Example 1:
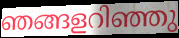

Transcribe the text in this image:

ഞങ്ങളറിഞ്ഞു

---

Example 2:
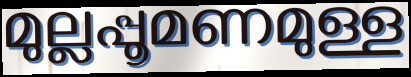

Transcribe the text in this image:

മുല്ലപ്പൂമണമുള്ള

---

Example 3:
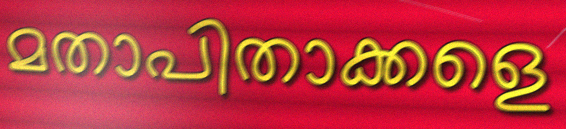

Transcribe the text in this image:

മതാപിതാക്കളെ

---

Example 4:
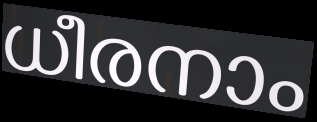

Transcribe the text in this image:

ധീരനാം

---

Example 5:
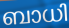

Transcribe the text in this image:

ബാധി